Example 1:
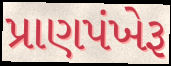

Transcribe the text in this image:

પ્રાણપંખેરૂ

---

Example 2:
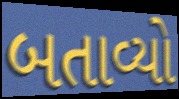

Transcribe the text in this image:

બતાવ્યો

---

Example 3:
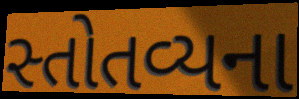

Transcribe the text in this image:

સ્તોતવ્યના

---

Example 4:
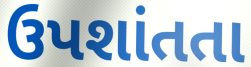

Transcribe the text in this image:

ઉપશાંતતા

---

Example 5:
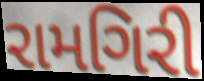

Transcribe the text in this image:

રામગિરી